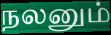
நலனும்